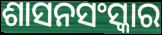
ଶାସନସଂସ୍କାର